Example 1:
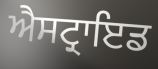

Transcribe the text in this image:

ਐਸਟ੍ਰਾਇਡ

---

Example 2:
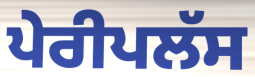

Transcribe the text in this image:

ਪੇਰੀਪਲੱਸ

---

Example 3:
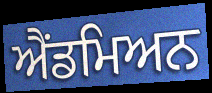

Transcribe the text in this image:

ਐਂਡਮਿਅਨ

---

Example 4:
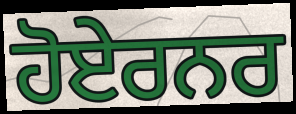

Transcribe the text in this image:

ਹੋਏਰਨਰ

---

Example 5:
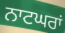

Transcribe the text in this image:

ਨਾਟਘਰਾਂ